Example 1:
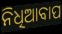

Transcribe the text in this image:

ନିଧିଆବାପ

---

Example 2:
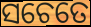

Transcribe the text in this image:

ସଚେତେ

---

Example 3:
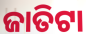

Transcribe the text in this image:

ଜାତିଟା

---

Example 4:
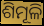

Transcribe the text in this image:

ଶିମୂଳି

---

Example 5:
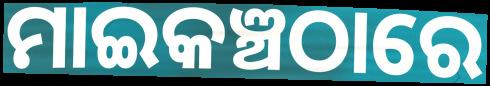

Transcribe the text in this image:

ମାଇକଞ୍ଚଠାରେ